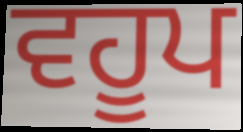
ਵਹੂਪ